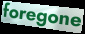
foregone